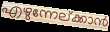
എഴുന്നേല്ക്കാൻ